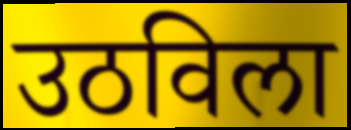
उठविला